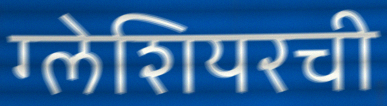
ग्लेशियरची